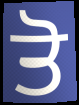
ਤੋ